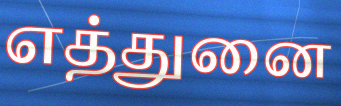
எத்துனை